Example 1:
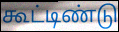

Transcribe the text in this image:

கூட்டிண்டு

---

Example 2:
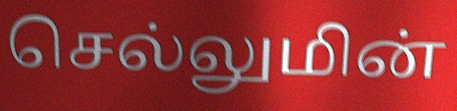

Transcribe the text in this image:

செல்லுமின்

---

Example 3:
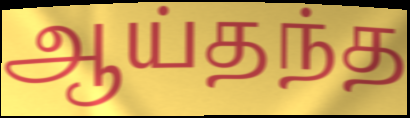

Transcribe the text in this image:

ஆய்தந்த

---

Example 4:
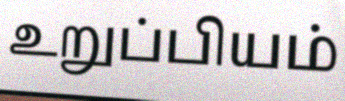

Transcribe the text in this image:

உறுப்பியம்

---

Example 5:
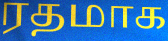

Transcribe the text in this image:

ரதமாக